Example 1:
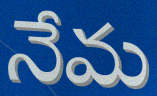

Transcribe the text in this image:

నేమ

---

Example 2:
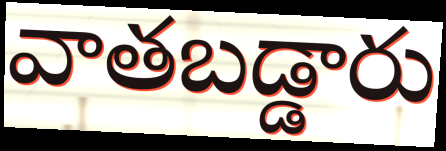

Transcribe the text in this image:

వాతబడ్డారు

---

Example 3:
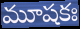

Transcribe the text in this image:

మూషకః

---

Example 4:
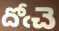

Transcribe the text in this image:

దోఁచె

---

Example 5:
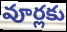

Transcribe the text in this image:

వూర్లకు